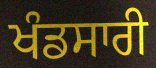
ਖੰਡਸਾਰੀ